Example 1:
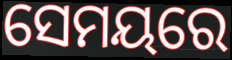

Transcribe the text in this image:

ସେମୟରେ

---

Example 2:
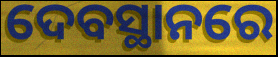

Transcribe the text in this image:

ଦେବସ୍ଥାନରେ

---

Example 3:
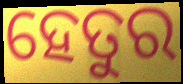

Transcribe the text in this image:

ହେତୁର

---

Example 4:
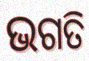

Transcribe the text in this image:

ଭଗତି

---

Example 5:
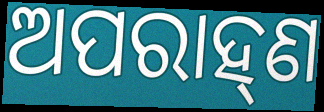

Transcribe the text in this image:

ଅପରାହ୍‌ଣ